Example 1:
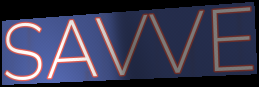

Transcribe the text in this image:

SAVVE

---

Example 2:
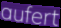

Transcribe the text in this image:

aufert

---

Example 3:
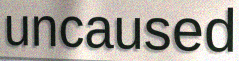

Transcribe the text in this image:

uncaused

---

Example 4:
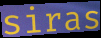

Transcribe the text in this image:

siras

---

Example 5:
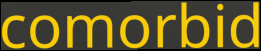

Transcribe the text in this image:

comorbid